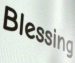
Blessing